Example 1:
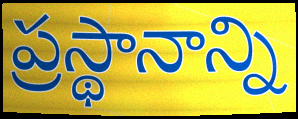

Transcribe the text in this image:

ప్రస్థానాన్ని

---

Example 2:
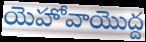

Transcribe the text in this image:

యెహోవాయొద్ద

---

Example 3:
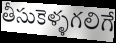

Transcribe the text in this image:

తీసుకెళ్ళగలిగే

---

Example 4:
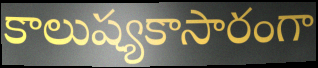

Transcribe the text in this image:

కాలుష్యకాసారంగా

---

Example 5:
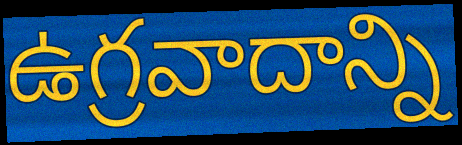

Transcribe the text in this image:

ఉగ్రవాదాన్ని